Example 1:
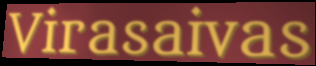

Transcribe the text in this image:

Virasaivas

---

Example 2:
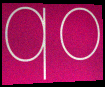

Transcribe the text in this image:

qo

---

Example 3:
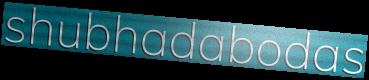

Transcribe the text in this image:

shubhadabodas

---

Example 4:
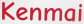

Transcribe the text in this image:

Kenmai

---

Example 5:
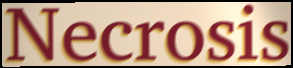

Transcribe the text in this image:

Necrosis